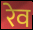
रेव